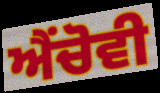
ਐਂਚੋਵੀ